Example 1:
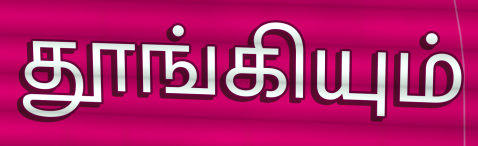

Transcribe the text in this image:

தூங்கியும்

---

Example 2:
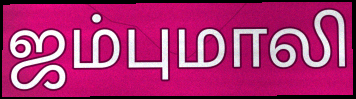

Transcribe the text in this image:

ஜம்புமாலி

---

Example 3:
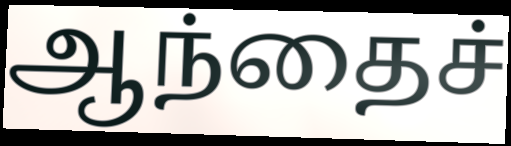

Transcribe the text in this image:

ஆந்தைச்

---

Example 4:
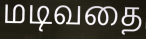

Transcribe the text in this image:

மடிவதை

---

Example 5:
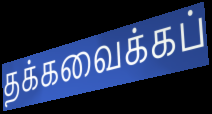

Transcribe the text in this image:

தக்கவைக்கப்